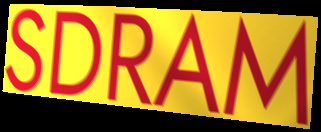
SDRAM